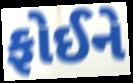
ફોઈને